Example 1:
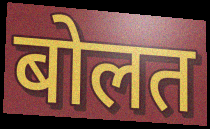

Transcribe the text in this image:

बोलत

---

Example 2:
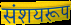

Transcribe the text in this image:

संशयरूप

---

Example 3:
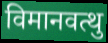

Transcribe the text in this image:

विमानवत्थु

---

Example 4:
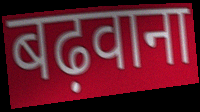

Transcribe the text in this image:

बढ़वाना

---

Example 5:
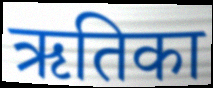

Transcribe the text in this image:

ऋतिका